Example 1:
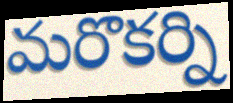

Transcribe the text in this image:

మరొకర్ని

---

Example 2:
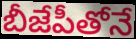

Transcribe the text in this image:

బీజేపీతోనే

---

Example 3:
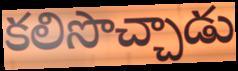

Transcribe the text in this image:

కలిసొచ్చాడు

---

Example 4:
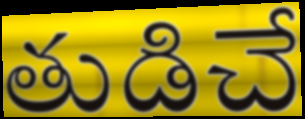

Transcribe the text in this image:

తుడిచే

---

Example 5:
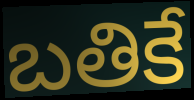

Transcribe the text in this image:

బతికే